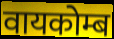
वायकोम्ब